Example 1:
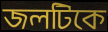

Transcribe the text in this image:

জলটিকে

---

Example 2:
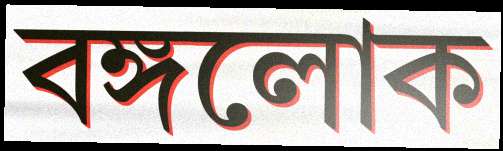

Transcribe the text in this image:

বঙ্গলোক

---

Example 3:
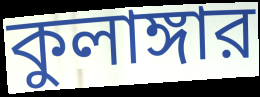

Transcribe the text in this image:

কুলাঙ্গার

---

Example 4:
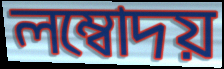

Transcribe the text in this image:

লম্বোদয়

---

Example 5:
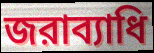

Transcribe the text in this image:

জরাব্যাধি